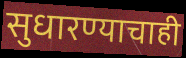
सुधारण्याचाही